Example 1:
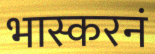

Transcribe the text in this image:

भास्करनं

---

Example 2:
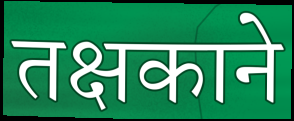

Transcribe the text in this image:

तक्षकाने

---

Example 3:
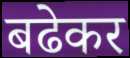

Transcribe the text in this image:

बढेकर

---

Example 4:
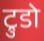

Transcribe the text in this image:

ट्रुडो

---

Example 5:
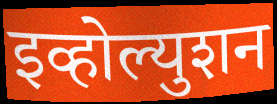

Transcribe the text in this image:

इव्होल्युशन